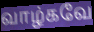
வாழ்கவே